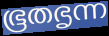
ഭൂതഭൃന്ന